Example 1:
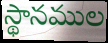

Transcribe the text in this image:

స్థానముల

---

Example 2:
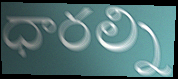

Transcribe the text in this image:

ధారల్ని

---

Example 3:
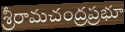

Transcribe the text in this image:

శ్రీరామచంద్రప్రభూ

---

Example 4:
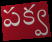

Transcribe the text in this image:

పక్వ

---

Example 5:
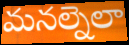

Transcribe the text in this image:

మనల్నెలా